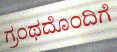
ಗ್ರಂಥದೊಂದಿಗೆ